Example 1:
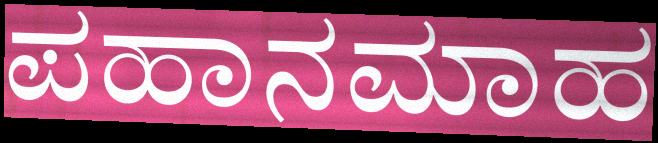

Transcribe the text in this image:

ಪಹಾನಮಾಹ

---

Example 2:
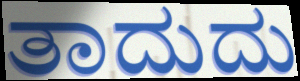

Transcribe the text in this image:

ತಾದುದು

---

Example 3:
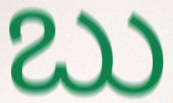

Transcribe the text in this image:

ಬು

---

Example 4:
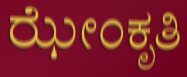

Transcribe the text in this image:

ಝೇಂಕೃತಿ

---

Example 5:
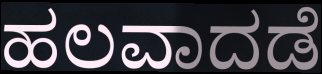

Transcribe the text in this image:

ಹಲವಾದಡೆ